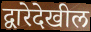
द्वारेदेखील